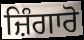
ਜ਼ਿੰਗਾਰੋ